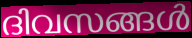
ദിവസങ്ങൾ